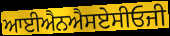
ਆਈਐਨਐਸਏਸੀਓਜੀ